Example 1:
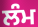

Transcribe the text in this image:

ਲੰਮ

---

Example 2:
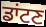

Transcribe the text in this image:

ਡਾਂਟਣ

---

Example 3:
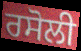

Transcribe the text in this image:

ਰਸੋਲੀ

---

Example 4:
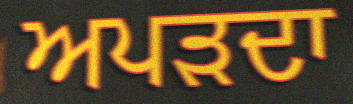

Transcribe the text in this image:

ਅਪੜਦਾ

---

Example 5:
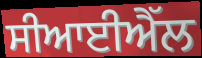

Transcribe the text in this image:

ਸੀਆਈਐੱਲ